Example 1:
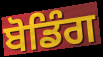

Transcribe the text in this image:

ਬੋਡਿੰਗ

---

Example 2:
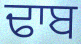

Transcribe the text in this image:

ਢਾਬ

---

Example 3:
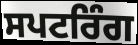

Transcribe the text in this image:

ਸਪਟਰਿੰਗ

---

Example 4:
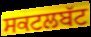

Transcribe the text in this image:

ਸਕਟਲਬੱਟ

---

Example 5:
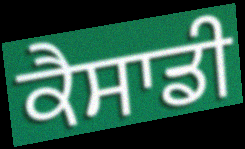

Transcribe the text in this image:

ਕੈਸਾਡੀ